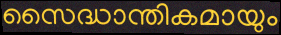
സൈദ്ധാന്തികമായും